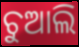
ଚୁଆଲି